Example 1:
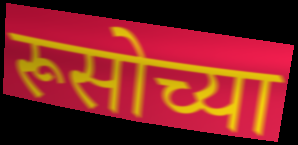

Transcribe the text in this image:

रूसोच्या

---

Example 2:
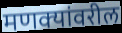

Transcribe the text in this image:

मणक्यांवरील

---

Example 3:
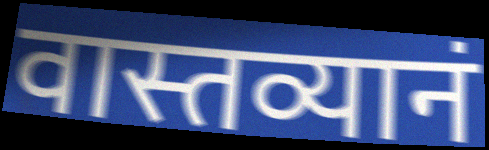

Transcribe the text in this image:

वास्तव्यानं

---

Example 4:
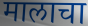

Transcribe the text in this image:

मालाचा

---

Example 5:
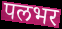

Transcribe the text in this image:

पलभर